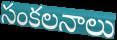
సంకలనాలు